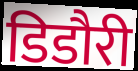
डिडौरी